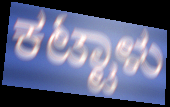
ಕಟ್ಟಾಳು